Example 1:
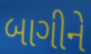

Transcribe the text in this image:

બાગીને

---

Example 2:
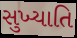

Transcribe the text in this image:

સુખ્યાતિ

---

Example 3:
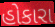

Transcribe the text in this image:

હોકારા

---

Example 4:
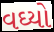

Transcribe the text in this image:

વઘ્યો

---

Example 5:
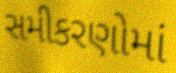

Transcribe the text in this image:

સમીકરણોમાં